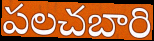
పలచబారి